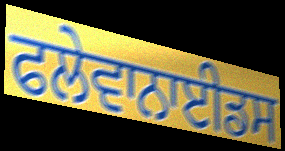
ਫਲੇਵਾਨਾਈਡਸ